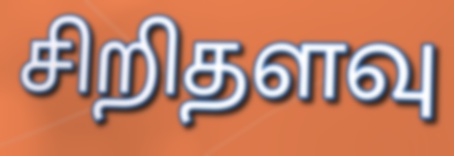
சிறிதளவு